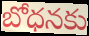
బోధనకు